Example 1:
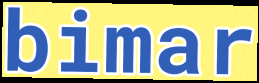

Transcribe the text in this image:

bimar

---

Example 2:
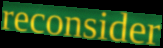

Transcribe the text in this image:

reconsider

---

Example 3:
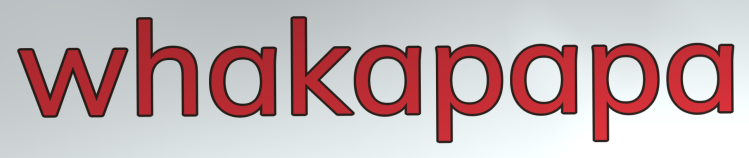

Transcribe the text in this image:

whakapapa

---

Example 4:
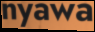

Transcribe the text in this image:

nyawa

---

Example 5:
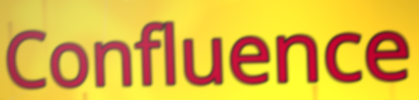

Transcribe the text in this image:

Confluence